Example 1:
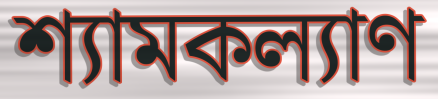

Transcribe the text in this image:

শ্যামকল্যাণ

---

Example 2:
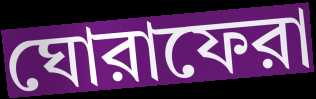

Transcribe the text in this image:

ঘোরাফেরা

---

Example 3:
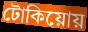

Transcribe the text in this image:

টোকিয়োয়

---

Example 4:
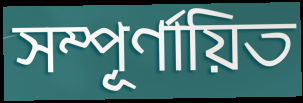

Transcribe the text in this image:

সম্পূর্ণায়িত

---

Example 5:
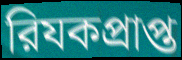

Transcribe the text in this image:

রিযকপ্রাপ্ত